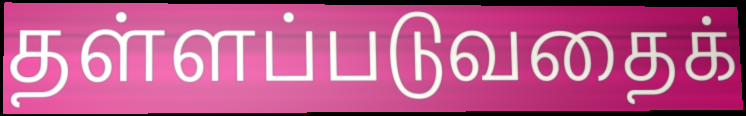
தள்ளப்படுவதைக்